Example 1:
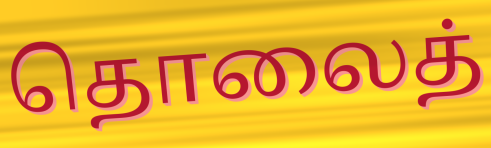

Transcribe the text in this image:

தொலைத்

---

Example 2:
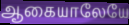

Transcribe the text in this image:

ஆகையாலேயே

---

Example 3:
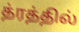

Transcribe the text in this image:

த்ரத்தில்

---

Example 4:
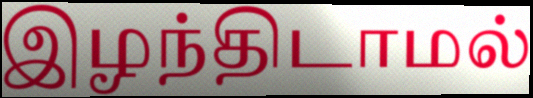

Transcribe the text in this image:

இழந்திடாமல்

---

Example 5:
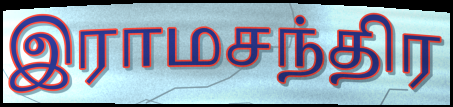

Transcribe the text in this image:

இராமசந்திர